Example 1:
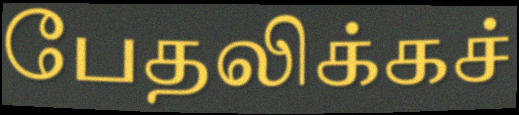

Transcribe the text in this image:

பேதலிக்கச்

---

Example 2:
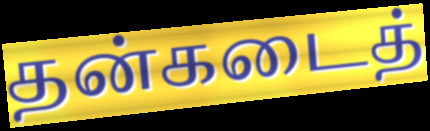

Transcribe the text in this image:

தன்கடைத்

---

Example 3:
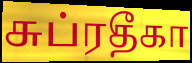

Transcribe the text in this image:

சுப்ரதீகா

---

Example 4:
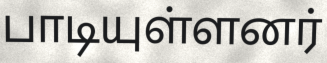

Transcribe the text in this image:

பாடியுள்ளனர்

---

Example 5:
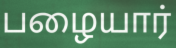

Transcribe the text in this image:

பழையார்